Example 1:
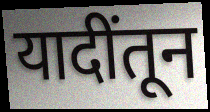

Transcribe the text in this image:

यादींतून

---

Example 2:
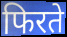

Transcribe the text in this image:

फिरते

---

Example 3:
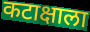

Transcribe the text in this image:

कटाक्षाला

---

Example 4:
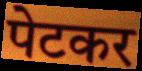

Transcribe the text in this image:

पेटकर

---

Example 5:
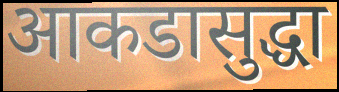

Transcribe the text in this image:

आकडासुद्धा